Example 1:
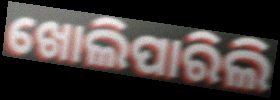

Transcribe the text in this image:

ଖୋଲିପାରିଲି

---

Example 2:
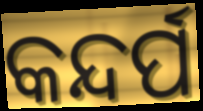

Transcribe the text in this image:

କନ୍ଦର୍ପ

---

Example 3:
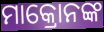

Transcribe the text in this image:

ମାକ୍ରୋନଙ୍କ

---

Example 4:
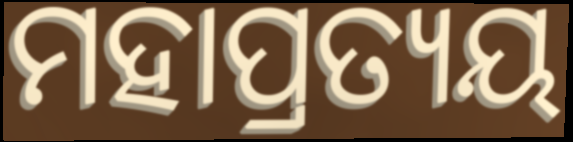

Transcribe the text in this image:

ମହାପ୍ରତ୍ୟୟ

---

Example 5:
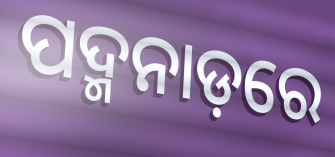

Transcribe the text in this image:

ପଦ୍ମନାଡ଼ରେ